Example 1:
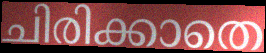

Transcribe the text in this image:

ചിരിക്കാതെ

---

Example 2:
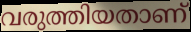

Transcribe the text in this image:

വരുത്തിയതാണ്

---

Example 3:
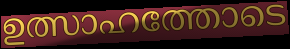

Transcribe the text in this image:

ഉത്സാഹത്തോടെ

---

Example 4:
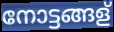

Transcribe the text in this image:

നോട്ടങ്ങള്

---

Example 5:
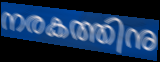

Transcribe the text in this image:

നരകത്തിനു